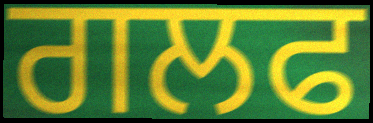
ਗਲਫ